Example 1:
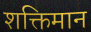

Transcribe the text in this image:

शक्तिमान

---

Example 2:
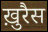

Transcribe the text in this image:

ख़ुरैस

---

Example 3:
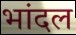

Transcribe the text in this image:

भांदल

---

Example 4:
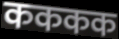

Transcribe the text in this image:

कककक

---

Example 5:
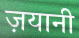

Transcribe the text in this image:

ज़यानी